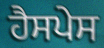
ਹੈਸਪੇਸ